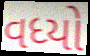
વધ્યો